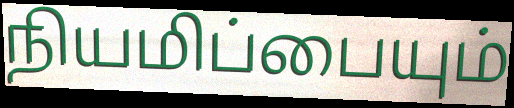
நியமிப்பையும்